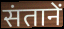
संतानें